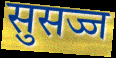
सुसज्ज